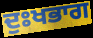
ਦੁਃਖਭਾਗ